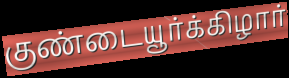
குண்டையூர்க்கிழார்